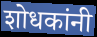
शोधकांनी